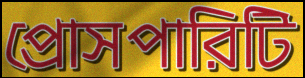
প্রোসপারিটি